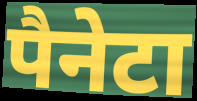
पैनेटा